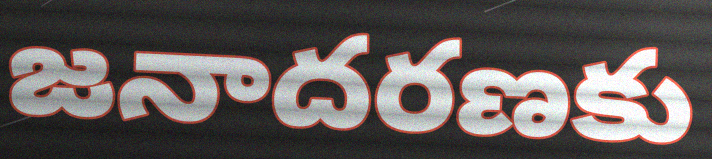
జనాదరణకు